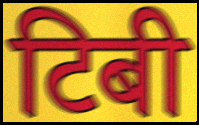
टिबी